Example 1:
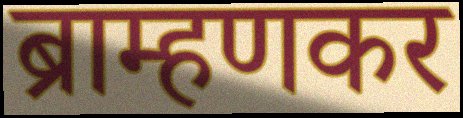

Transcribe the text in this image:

ब्राम्हणकर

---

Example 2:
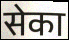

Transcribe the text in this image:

सेका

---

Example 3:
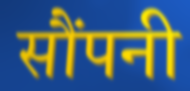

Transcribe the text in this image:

सौंपनी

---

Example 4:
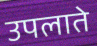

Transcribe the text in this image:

उपलाते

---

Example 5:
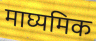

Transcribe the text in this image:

माघ्यमिक